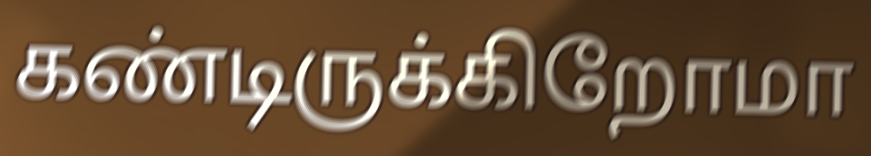
கண்டிருக்கிறோமா